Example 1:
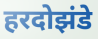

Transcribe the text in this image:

हरदोझंडे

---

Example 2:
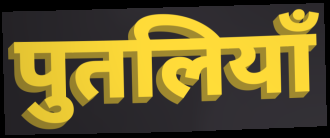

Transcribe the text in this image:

पुतलियाँ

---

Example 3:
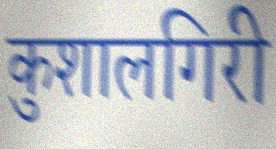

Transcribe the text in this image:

कुशालगिरी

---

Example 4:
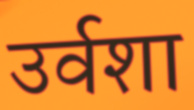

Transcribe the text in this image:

उर्वशा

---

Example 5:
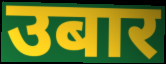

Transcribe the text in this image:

उबार